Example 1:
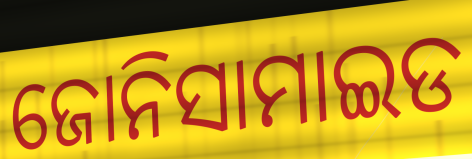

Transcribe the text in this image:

ଜୋନିସାମାଇଡ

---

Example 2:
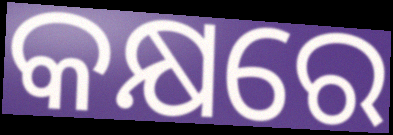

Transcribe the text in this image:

କକ୍ଷରେ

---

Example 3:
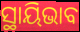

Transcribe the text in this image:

ସ୍ଥାୟିଭାବ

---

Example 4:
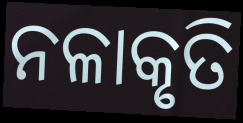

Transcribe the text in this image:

ନଳାକୃତି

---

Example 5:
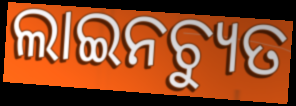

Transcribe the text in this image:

ଲାଇନଚ୍ୟୁତ